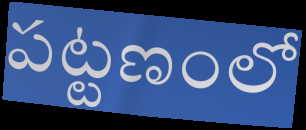
పట్టణంలో